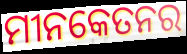
ମୀନକେତନର